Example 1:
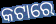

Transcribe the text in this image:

କଟାରେ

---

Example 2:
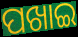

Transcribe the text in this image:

ପଖାଇ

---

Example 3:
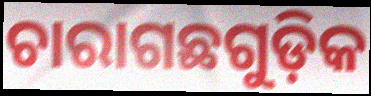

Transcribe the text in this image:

ଚାରାଗଛଗୁଡ଼ିକ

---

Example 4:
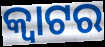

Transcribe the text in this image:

କ୍ୱାଟର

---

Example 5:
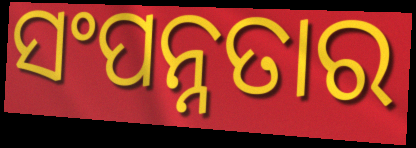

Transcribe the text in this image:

ସଂପନ୍ନତାର